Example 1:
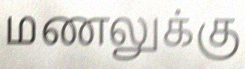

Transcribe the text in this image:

மணலுக்கு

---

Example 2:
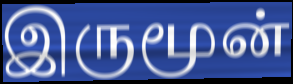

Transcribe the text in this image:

இருமூன்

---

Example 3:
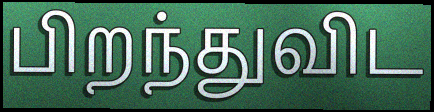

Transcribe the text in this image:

பிறந்துவிட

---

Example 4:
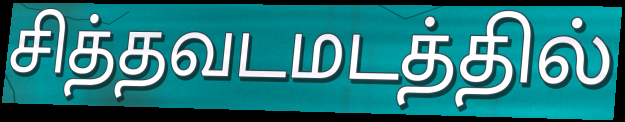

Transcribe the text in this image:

சித்தவடமடத்தில்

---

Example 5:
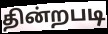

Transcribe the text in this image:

தின்றபடி